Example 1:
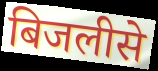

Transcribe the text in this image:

बिजलीसे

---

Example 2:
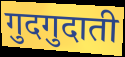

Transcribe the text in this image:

गुदगुदाती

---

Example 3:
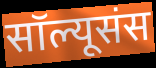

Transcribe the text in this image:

सॉल्यूसंस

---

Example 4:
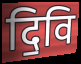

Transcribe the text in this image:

दि॒वि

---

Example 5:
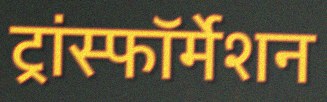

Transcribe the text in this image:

ट्रांस्फॉर्मेशन